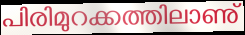
പിരിമുറക്കത്തിലാണു്